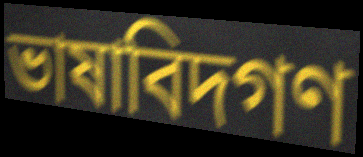
ভাষাবিদগণ